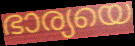
ഭാര്യയെ